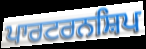
ਪਾਰਟਰਨਸ਼ਿਪ